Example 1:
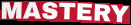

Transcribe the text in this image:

MASTERY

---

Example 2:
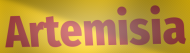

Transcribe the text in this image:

Artemisia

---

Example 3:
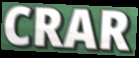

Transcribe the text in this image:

CRAR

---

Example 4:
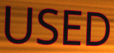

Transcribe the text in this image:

USED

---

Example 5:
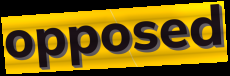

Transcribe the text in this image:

opposed